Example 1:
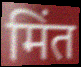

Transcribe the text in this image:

मिंत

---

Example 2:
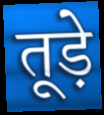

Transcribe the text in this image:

तूड़े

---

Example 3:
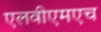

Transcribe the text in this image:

एलवीएमएच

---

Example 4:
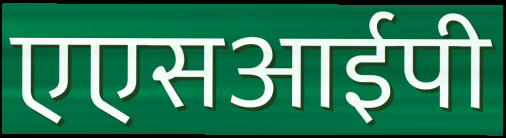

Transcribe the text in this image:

एएसआईपी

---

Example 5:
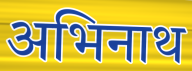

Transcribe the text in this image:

अभिनाथ